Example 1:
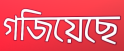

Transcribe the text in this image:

গজিয়েছে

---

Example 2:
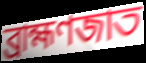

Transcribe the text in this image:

ব্রাহ্মণজাত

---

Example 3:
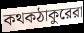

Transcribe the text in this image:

কথকঠাকুরেরা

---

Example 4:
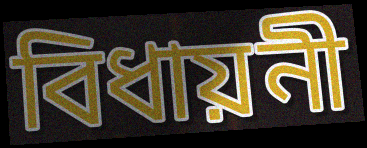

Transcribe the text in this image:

বিধায়নী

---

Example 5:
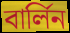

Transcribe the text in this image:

বার্লিন